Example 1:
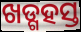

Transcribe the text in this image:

ଖଡ୍ଗହସ୍ତ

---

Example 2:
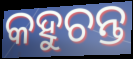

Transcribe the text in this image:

କହୁଚନ୍ତ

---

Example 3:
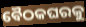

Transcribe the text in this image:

ବୈଠକଘରକୁ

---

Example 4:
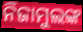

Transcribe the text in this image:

ନିଜାମୁଲଙ୍କ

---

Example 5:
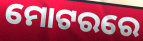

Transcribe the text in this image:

ମୋଟରରେ